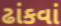
ઢાંકવાં